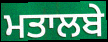
ਮਤਾਲਬੇ